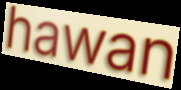
hawan